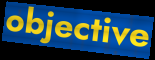
objective